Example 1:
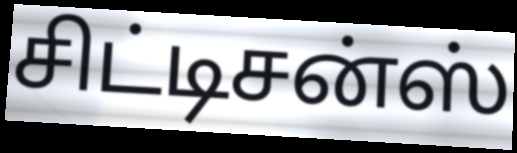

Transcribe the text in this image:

சிட்டிசன்ஸ்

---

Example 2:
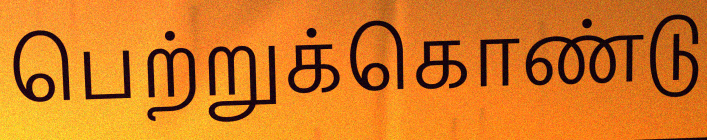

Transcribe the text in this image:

பெற்றுக்கொண்டு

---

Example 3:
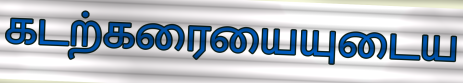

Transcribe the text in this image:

கடற்கரையையுடைய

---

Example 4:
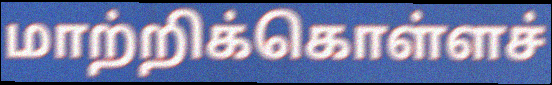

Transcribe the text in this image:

மாற்றிக்கொள்ளச்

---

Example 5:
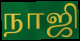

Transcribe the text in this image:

நாஜி